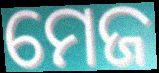
ମେଜ